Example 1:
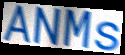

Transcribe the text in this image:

ANMs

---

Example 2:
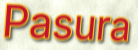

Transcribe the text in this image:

Pasura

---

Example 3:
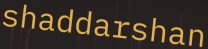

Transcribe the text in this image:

shaddarshan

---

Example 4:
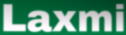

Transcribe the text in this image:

Laxmi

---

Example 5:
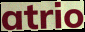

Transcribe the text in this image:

atrio